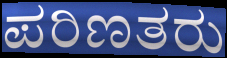
ಪರಿಣತರು